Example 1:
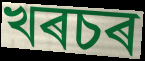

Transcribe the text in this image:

খৰচৰ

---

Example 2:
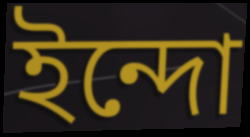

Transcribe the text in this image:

ইন্দো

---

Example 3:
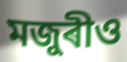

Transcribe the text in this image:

মজুৰীও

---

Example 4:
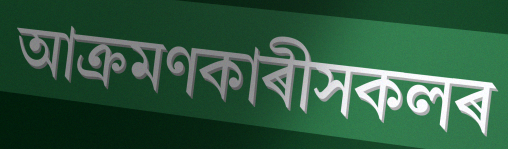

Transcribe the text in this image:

আক্ৰমণকাৰীসকলৰ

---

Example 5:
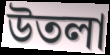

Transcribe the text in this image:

উতলা